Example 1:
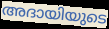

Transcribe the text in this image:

അദായിയുടെ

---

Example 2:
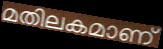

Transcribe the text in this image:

മതിലകമാണ്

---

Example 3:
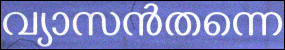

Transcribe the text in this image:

വ്യാസൻതന്നെ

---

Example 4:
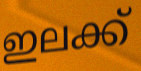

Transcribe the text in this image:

ഇലക്ക്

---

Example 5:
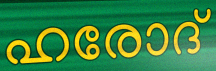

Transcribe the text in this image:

ഹരോദ്